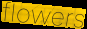
flowers